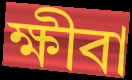
ক্ষীবা